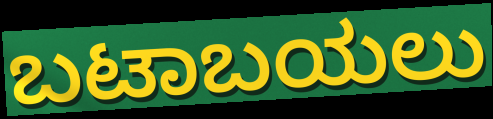
ಬಟಾಬಯಲು